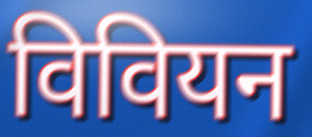
विवियन